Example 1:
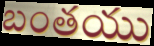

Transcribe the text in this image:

బంతయు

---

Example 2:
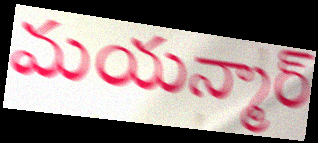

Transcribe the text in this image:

మయన్మార్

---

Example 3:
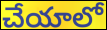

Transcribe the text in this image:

చేయాలో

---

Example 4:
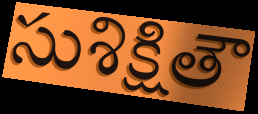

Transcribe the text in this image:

సుశిక్షితౌ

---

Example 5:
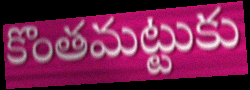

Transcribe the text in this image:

కొంతమట్టుకు